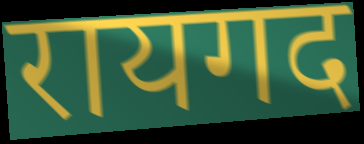
रायगद